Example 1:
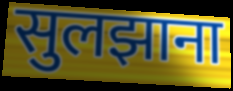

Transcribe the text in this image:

सुलझाना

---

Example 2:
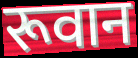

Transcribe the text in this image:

रूवान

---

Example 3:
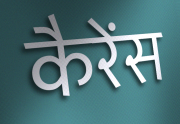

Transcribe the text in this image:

कैरेंस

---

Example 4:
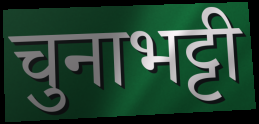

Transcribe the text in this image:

चुनाभट्टी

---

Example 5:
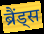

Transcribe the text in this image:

ब्रैंड्स